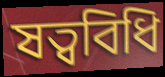
ষত্ববিধি